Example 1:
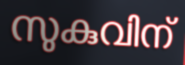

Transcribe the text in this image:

സുകുവിന്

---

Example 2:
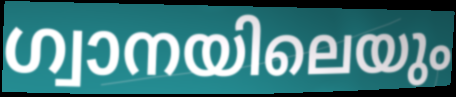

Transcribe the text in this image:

ഗ്വാനയിലെയും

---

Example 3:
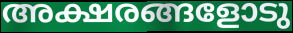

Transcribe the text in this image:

അക്ഷരങ്ങളോടു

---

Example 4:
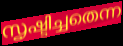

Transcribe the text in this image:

സൃഷ്ടിച്ചതെന്ന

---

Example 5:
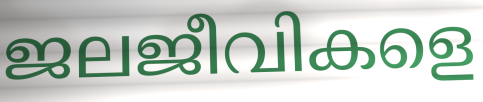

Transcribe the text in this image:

ജലജീവികളെ